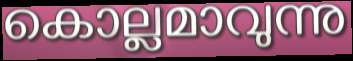
കൊല്ലമാവുന്നു